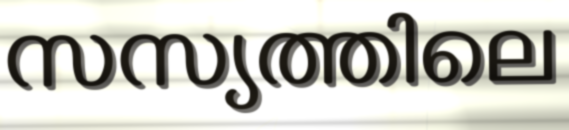
സസ്യത്തിലെ